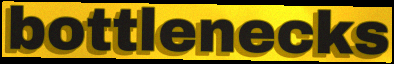
bottlenecks